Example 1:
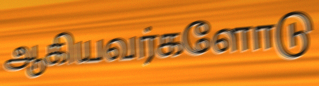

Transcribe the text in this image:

ஆகியவர்களோடு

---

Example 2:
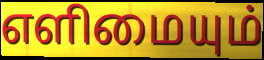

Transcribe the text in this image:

எளிமையும்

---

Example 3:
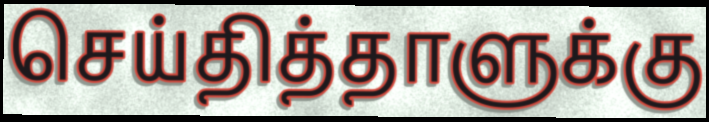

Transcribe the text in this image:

செய்தித்தாளுக்கு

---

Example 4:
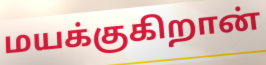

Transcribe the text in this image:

மயக்குகிறான்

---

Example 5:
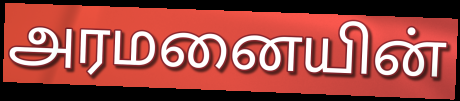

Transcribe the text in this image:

அரமனையின்